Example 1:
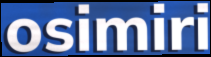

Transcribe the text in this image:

osimiri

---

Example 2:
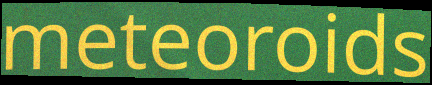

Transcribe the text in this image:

meteoroids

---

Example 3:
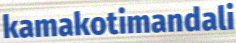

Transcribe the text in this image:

kamakotimandali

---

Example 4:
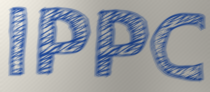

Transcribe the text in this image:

IPPC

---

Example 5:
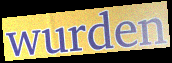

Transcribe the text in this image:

wurden